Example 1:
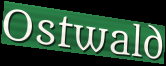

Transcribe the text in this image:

Ostwald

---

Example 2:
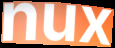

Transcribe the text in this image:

nux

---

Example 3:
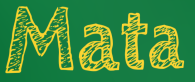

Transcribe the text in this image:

Mata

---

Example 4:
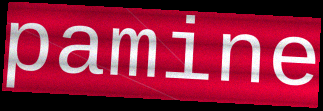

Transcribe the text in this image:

pamine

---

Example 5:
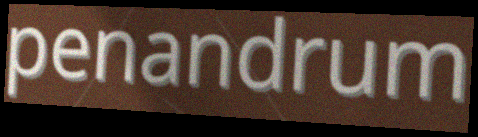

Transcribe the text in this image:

penandrum